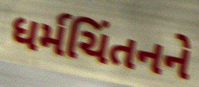
ધર્મચિંતનને